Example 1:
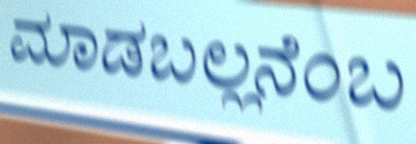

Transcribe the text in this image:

ಮಾಡಬಲ್ಲನೆಂಬ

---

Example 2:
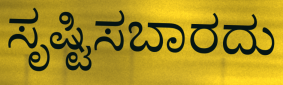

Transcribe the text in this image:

ಸೃಷ್ಟಿಸಬಾರದು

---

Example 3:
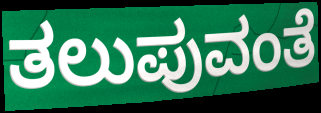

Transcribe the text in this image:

ತಲುಪುವಂತೆ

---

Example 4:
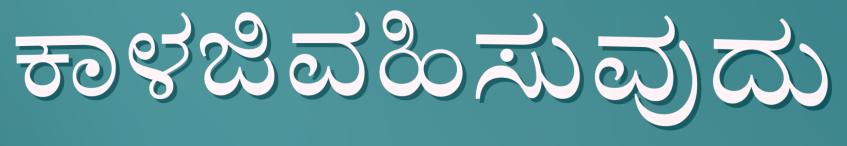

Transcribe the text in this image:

ಕಾಳಜಿವಹಿಸುವುದು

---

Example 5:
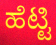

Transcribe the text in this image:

ಹೆಟ್ಟಿ